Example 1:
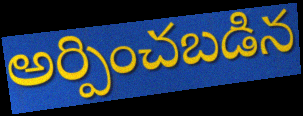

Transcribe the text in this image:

అర్పించబడిన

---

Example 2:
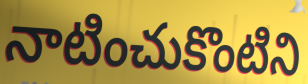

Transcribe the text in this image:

నాటించుకొంటిని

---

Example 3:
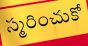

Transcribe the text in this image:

స్మరించుకో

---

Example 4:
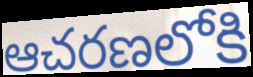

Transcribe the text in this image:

ఆచరణలోకి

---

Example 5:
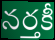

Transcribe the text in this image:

నర్తకీ